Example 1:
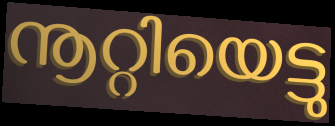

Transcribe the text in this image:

നൂറ്റിയെട്ടു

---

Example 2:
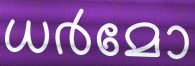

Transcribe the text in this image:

ധർമോ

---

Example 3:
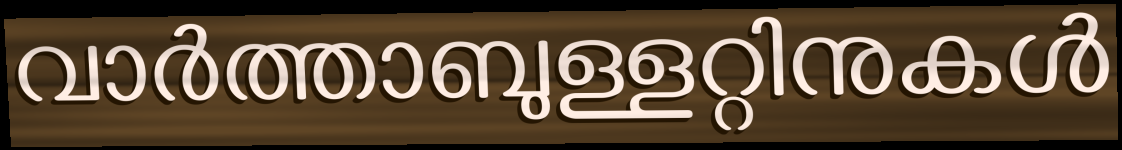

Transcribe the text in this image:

വാർത്താബുള്ളറ്റിനുകൾ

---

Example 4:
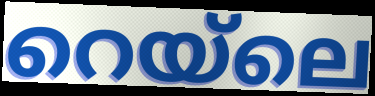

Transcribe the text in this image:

റെയ്ലെ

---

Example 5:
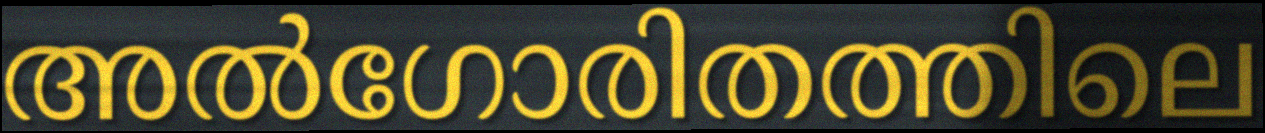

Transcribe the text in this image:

അൽഗോരിതത്തിലെ